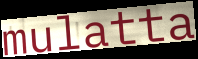
mulatta